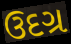
ઉદગ્ર